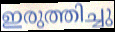
ഇരുത്തിച്ചു